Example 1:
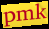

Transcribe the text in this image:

pmk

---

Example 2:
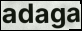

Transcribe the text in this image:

adaga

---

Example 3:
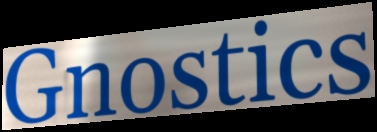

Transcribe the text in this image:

Gnostics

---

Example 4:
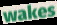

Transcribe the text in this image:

wakes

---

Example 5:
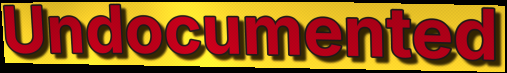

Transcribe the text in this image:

Undocumented